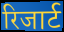
रिजार्ट